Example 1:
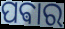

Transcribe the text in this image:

ପଵାର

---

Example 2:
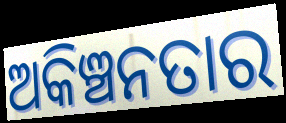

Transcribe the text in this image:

ଅକିଞ୍ଚନତାର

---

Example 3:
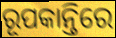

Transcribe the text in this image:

ରୂପକାନ୍ତିରେ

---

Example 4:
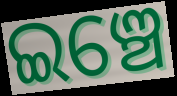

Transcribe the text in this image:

ଇଞ୍ଚେ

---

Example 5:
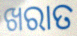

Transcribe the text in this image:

ଖରାତ